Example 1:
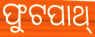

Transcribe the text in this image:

ଫୁଟପାଥ୍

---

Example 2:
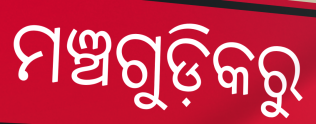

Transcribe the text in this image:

ମଞ୍ଚଗୁଡ଼ିକରୁ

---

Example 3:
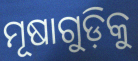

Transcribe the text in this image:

ମୂଷାଗୁଡ଼ିକୁ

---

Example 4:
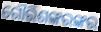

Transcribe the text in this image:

ଗୌରିଶଙ୍କରଙ୍କର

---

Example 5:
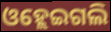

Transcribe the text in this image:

ଓହ୍ଲେଇଗଲି